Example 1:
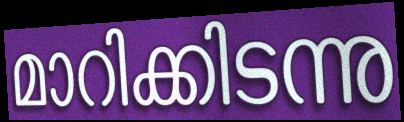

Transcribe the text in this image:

മാറിക്കിടന്നു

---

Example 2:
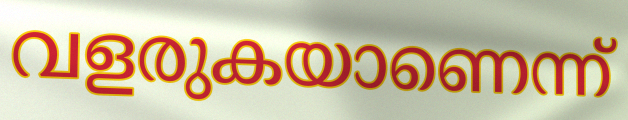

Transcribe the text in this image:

വളരുകയാണെന്ന്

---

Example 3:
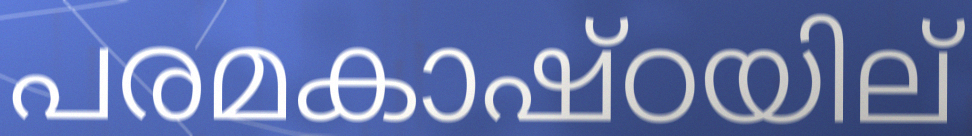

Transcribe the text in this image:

പരമകാഷ്ഠയില്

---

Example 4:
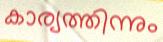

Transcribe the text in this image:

കാര്യത്തിന്നും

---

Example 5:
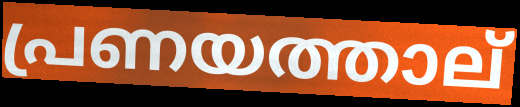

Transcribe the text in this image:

പ്രണയത്താല്